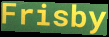
Frisby